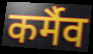
कर्मैव